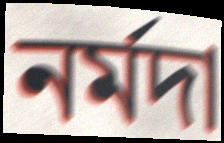
নর্মদা